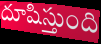
దూషిస్తుంది